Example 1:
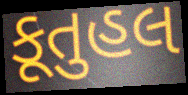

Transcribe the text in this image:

કૂતુહલ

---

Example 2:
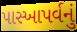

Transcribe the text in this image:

પાસ્ખાપર્વનું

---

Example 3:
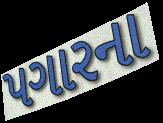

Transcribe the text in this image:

પગારના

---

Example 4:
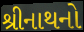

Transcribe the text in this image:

શ્રીનાથનો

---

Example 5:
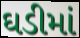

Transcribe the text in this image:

ઘડીમાં